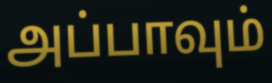
அப்பாவும்